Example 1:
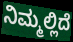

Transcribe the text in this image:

ನಿಮ್ಮಲ್ಲಿದೆ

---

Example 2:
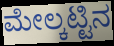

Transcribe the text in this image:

ಮೇಲ್ಕಟ್ಟಿನ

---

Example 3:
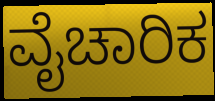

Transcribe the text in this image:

ವೈಚಾರಿಕ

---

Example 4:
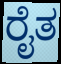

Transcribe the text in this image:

ರೈತ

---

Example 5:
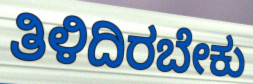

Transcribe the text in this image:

ತಿಳಿದಿರಬೇಕು